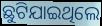
ଛୁଟିଯାଇଥିଲେ